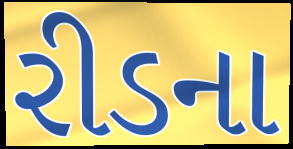
રીડના